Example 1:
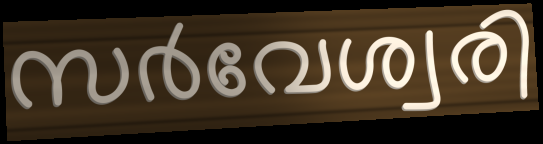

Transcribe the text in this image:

സർവേശ്വരി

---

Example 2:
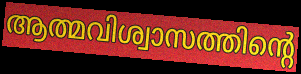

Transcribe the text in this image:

ആത്മവിശ്വാസത്തിന്റെ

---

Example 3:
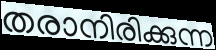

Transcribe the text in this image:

തരാനിരിക്കുന്ന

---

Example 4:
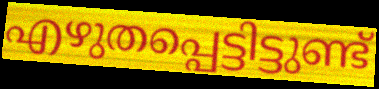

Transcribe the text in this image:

എഴുതപ്പെട്ടിട്ടുണ്ട്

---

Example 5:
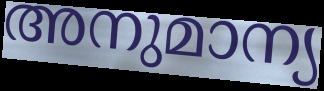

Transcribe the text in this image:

അനുമാന്യ